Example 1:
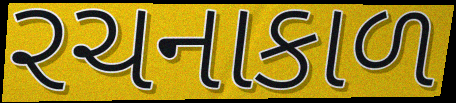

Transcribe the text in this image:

રચનાકાળ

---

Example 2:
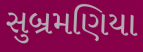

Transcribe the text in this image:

સુબ્રમણિયા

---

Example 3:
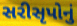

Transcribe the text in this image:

સરીસૃપોનું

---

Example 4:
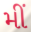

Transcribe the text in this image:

મીં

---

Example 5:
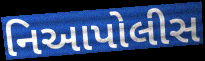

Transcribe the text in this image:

નિઆપોલીસ